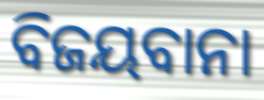
ବିଜୟବାନା